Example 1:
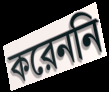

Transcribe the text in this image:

করেননি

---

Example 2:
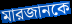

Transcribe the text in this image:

মারজানকে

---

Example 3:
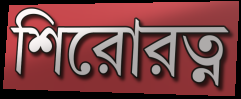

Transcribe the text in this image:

শিরোরত্ন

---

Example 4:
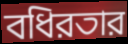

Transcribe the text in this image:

বধিরতার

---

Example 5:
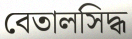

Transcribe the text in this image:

বেতালসিদ্ধ